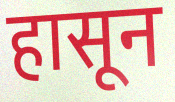
हासून